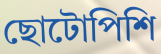
ছোটোপিশি